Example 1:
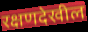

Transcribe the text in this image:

रक्षणदेखील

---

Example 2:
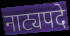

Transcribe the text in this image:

नाट्यपदे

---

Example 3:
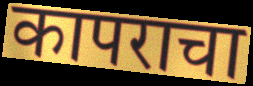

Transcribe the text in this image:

कापराचा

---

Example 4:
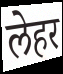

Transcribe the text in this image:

लेहर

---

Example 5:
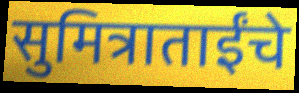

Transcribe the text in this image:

सुमित्राताईंचे